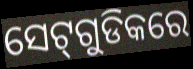
ସେଟ୍‌ଗୁଡିକରେ